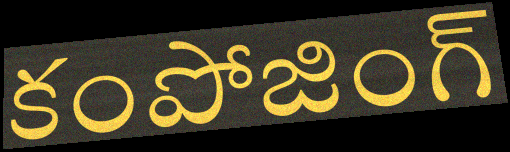
కంపోజింగ్